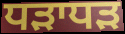
ਧੜਾਧੜ